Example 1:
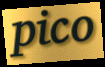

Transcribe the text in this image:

pico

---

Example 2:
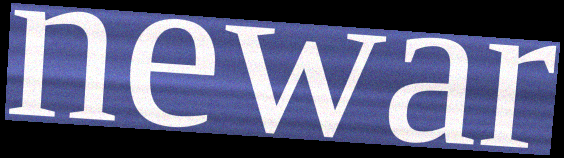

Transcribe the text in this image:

newar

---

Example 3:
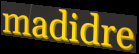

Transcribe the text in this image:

madidre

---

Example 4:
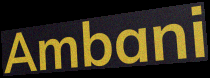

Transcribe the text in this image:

Ambani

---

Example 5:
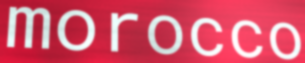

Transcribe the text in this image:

morocco